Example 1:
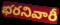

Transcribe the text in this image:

భరనివారీ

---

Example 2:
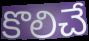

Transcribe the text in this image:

కొలిచే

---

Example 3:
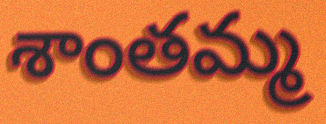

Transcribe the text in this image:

శాంతమ్మ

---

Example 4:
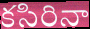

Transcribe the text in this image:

కసిరినా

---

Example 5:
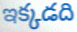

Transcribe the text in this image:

ఇక్కడది